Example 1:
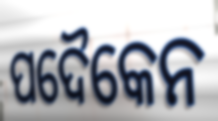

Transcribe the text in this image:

ପଦୈକେନ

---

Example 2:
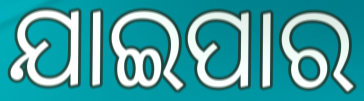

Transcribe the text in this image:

ଯାଇପାର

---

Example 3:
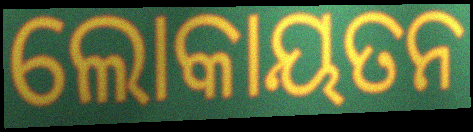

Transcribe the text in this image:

ଲୋକାୟତନ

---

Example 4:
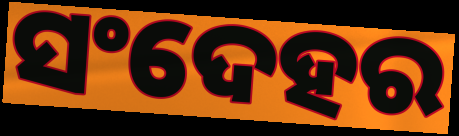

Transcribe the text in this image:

ସଂଦେହର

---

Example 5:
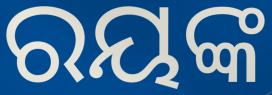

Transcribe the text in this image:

ରୟଙ୍କ